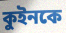
কুইনকে